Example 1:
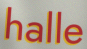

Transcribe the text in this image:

halle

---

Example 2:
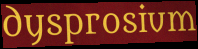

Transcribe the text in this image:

dysprosium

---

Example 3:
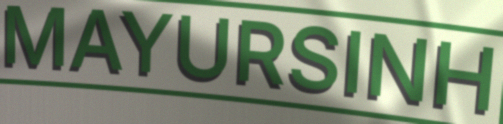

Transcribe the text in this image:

MAYURSINH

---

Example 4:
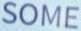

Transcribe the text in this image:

SOME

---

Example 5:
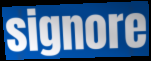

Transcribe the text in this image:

signore